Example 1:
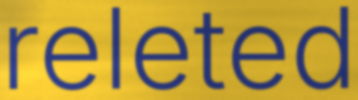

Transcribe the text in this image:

releted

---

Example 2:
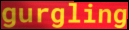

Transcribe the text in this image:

gurgling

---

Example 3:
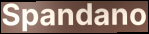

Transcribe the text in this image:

Spandano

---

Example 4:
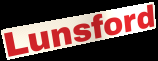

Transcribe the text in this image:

Lunsford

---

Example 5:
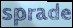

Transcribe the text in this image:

sprade